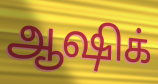
ஆஷிக்